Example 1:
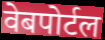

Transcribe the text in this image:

वेबपोर्टल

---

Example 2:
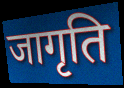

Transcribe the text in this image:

जागृति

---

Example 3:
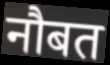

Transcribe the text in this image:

नौबत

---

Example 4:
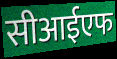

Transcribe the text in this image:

सीआईएफ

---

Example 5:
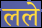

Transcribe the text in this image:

लले